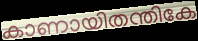
കാണായിതന്തികേ